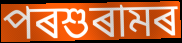
পৰশুৰামৰ